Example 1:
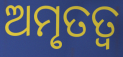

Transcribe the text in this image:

ଅମୃତତ୍ବ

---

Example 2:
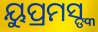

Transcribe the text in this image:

ୟୁପ୍ରମସ୍ଙ୍କ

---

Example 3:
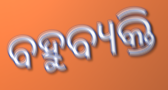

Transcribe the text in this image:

ବହୁବ୍ୟକ୍ତି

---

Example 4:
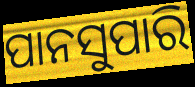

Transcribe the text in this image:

ପାନସୁପାରି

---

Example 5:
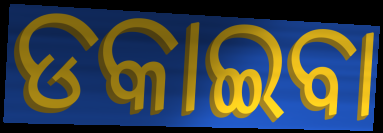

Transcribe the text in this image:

ଡକାଇବା